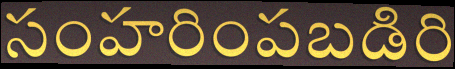
సంహరింపబడిరి